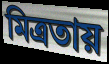
মিত্রতায়